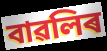
বাৱলিৰ